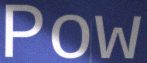
Pow